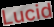
Lucid